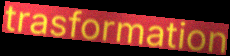
trasformation